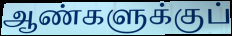
ஆண்களுக்குப்